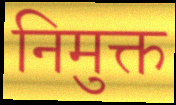
निमुक्त